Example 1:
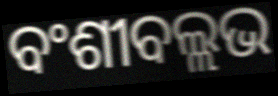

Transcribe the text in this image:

ବଂଶୀବଲ୍ଲଭ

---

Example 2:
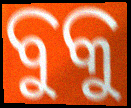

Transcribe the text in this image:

ବୁକୁ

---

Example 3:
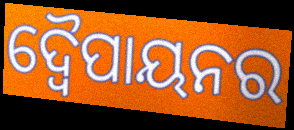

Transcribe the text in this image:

ଦ୍ୱୈପାୟନର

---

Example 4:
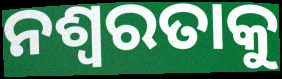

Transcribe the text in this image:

ନଶ୍ବରତାକୁ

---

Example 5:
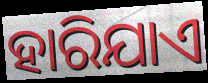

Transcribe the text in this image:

ହାରିଯାଏ